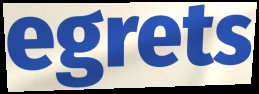
egrets